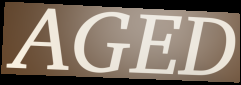
AGED